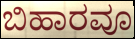
ಬಿಹಾರವೂ